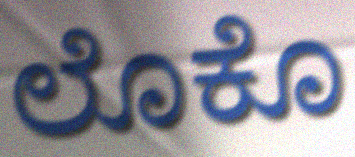
ಲೊಕೊ